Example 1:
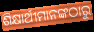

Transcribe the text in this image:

ଶିକ୍ଷାର୍ଥୀମାନଙ୍କଠାରୁ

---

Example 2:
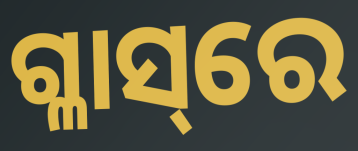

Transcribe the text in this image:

ଗ୍ଳାସ୍‌ରେ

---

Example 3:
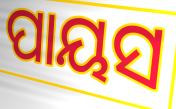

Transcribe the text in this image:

ପାୟସ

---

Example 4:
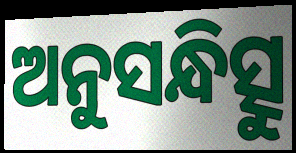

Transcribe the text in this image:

ଅନୁସନ୍ଧିତ୍ସୁ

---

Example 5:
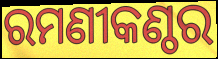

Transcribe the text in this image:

ରମଣୀକଣ୍ଠର